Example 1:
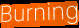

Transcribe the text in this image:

Burning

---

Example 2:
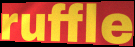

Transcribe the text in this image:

ruffle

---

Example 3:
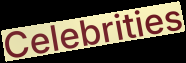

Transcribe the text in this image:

Celebrities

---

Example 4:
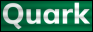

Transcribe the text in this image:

Quark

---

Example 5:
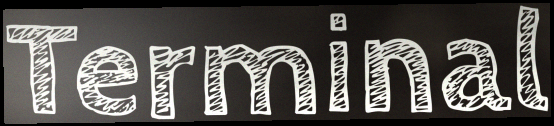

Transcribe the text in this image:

Terminal